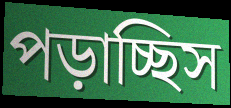
পড়াচ্ছিস